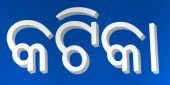
କଟିକା